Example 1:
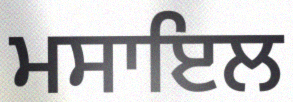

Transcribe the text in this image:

ਮਸਾਇਲ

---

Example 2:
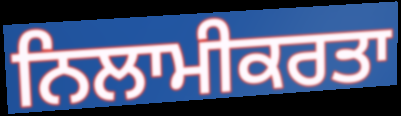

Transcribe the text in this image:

ਨਿਲਾਮੀਕਰਤਾ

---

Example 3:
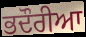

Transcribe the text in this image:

ਭਦੌਰੀਆ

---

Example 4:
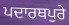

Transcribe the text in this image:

ਪਦਾਰਥਪੁਰੇ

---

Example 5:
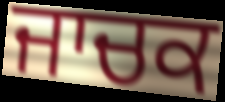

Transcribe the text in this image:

ਜਾਚਕ